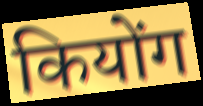
कियोंग